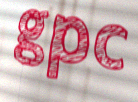
gpc